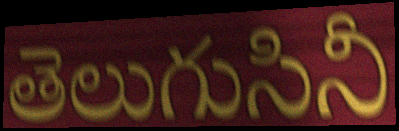
తెలుగుసినీ